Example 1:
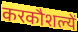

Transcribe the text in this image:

करकौशल्यें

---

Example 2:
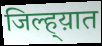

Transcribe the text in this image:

जिल्ह्य़ात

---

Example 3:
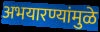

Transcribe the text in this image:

अभयारण्यांमुळे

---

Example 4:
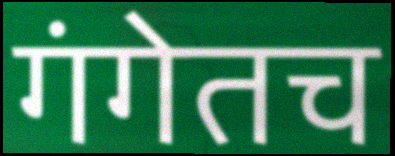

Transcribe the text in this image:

गंगेतच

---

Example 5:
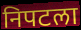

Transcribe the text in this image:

निपटला